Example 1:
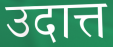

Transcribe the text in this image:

उदात्त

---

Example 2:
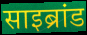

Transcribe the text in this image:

साइब्रांड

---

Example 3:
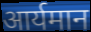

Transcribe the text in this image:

आर्यमान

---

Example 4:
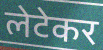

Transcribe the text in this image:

लेटेकर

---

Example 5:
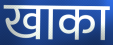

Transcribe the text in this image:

खाका